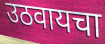
उठवायचा